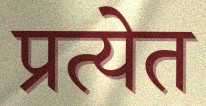
प्रत्येत